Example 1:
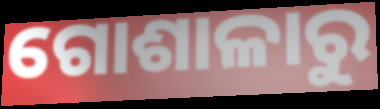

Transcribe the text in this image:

ଗୋଶାଳାରୁ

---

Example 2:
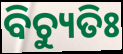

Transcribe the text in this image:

ବିଚ୍ୟୁତିଃ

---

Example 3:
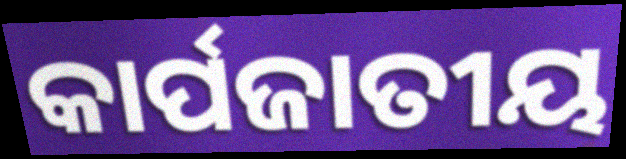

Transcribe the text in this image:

କାର୍ପଜାତୀୟ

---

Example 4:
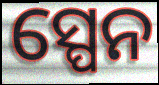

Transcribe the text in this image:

ସ୍ପେନ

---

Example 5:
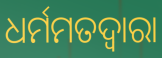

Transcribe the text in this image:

ଧର୍ମମତଦ୍ୱାରା